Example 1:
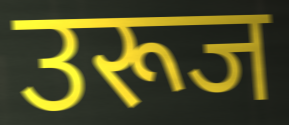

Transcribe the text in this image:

उरूज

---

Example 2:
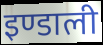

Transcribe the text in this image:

इण्डाली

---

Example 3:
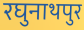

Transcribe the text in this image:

रघुनाथपुर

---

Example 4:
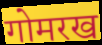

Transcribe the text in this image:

गोमरख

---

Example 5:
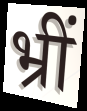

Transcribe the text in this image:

भ्रीं